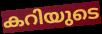
കറിയുടെ